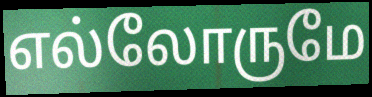
எல்லோருமே